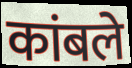
कांबले